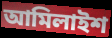
আমিলাইশ